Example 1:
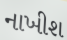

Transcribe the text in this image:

નાખીશ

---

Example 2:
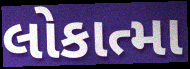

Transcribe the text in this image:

લોકાત્મા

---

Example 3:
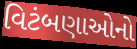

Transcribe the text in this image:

વિટંબણાઓનો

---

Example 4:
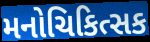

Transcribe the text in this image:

મનોચિકિત્સક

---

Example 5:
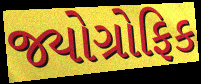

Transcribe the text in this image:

જ્યોગ્રોફિક